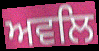
ਅਵਲਿ